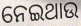
ନେଇଥାଉ